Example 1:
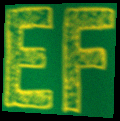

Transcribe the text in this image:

EF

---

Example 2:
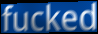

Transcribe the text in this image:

fucked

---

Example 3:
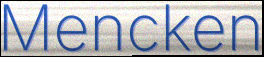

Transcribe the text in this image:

Mencken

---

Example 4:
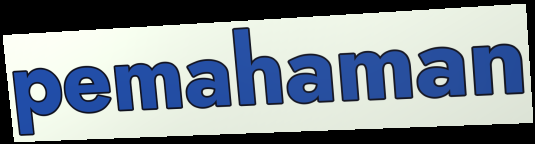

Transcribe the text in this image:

pemahaman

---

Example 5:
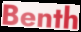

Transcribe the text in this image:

Benth